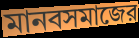
মানবসমাজের